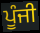
ਪੂੰਜੀ